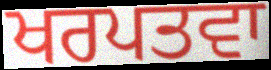
ਖਰਪਤਵਾ